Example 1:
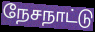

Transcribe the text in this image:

நேசநாட்டு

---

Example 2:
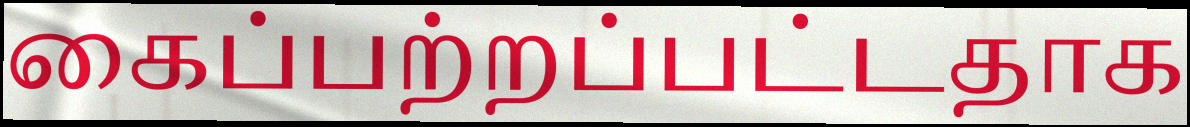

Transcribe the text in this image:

கைப்பற்றப்பட்டதாக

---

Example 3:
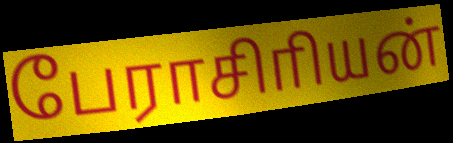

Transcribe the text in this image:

பேராசிரியன்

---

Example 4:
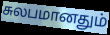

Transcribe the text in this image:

சுலபமானதும்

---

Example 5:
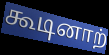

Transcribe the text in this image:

கூடினாற்